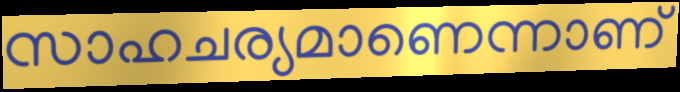
സാഹചര്യമാണെന്നാണ്